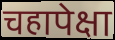
चहापेक्षा